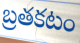
బ్రతకటం